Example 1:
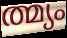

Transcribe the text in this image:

ത്മ്യം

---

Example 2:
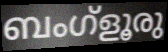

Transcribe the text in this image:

ബംഗ്ളൂരു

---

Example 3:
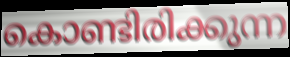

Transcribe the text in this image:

കൊണ്ടിരിക്കുന്ന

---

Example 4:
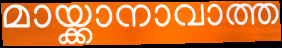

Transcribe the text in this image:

മായ്ക്കാനാവാത്ത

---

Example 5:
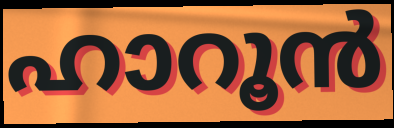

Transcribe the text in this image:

ഹാറൂൻ